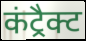
कंट्रैक्ट